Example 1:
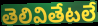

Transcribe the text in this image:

తెలివితేటలే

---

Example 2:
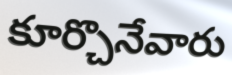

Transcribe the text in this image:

కూర్చొనేవారు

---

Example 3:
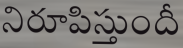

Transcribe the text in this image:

నిరూపిస్తుందీ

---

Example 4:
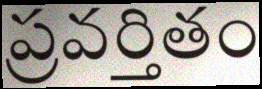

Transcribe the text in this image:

ప్రవర్తితం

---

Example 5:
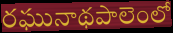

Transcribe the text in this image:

రఘునాథపాలెంలో